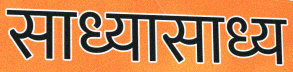
साध्यासाध्य